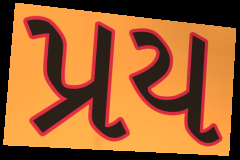
પ્રય